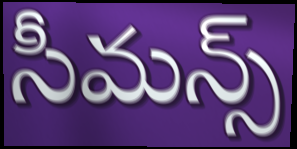
సీమన్స్